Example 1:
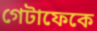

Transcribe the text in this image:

গেটাফেকে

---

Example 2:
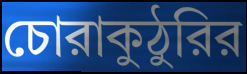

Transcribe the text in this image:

চোরাকুঠুরির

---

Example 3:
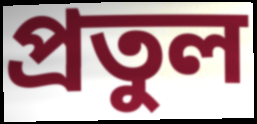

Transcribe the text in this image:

প্রতুল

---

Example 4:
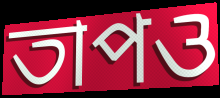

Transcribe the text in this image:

তাপও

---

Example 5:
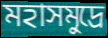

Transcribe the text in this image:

মহাসমুদ্রে